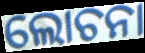
ଲୋଚନା